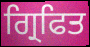
ਗ੍ਰਿਫਿਤ